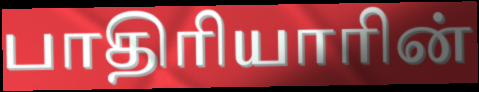
பாதிரியாரின்